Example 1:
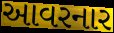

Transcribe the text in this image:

આવરનાર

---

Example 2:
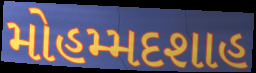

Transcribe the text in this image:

મોહમ્મદશાહ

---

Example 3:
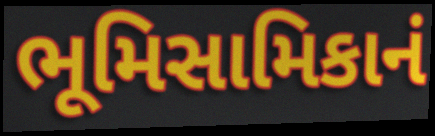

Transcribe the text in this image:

ભૂમિસામિકાનં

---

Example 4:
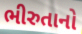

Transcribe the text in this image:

ભીરુતાનો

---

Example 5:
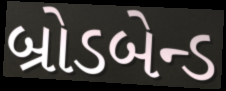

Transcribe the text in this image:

બ્રોડબેન્ડ